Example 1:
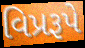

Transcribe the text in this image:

વિપ્રરૂપે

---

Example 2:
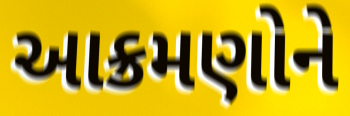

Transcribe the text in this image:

આક્રમણોને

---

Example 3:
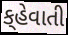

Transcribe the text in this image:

ક્‌હેવાતી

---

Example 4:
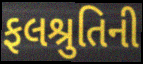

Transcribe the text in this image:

ફલશ્રુતિની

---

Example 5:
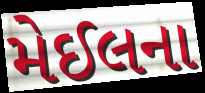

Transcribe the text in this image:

મેઈલના